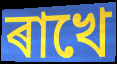
ৰাখে